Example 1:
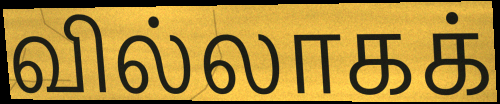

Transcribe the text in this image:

வில்லாகக்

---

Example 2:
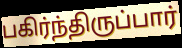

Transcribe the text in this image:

பகிர்ந்திருப்பார்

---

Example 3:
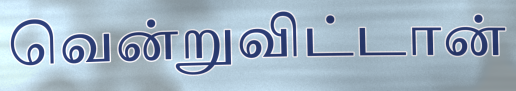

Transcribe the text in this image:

வென்றுவிட்டான்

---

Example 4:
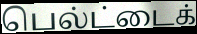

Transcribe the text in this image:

பெல்ட்டைக்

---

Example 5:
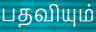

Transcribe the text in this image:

பதவியும்